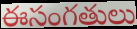
ఈసంగతులు